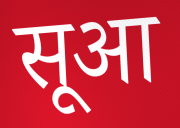
सूआ